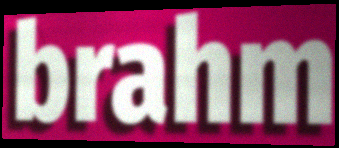
brahm